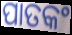
ପାତକଂ